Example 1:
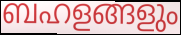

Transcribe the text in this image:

ബഹളങ്ങളും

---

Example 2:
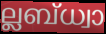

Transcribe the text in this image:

ല്ലബ്ധ്വാ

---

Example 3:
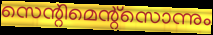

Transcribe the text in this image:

സെന്റിമെന്റ്സൊന്നും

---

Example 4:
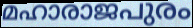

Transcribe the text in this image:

മഹാരാജപുരം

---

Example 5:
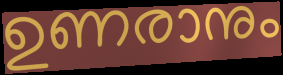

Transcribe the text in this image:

ഉണരാനും